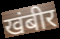
खंबीर